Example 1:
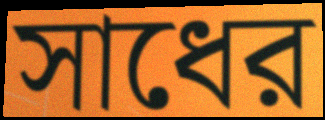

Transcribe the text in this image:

সাধের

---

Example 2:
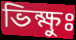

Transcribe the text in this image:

ভিক্ষুঃ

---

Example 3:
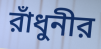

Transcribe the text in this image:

রাঁধুনীর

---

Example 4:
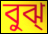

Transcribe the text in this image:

বুঝ্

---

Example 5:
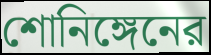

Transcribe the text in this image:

শোনিঙ্গেনের